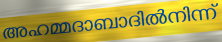
അഹമ്മദാബാദിൽനിന്ന്